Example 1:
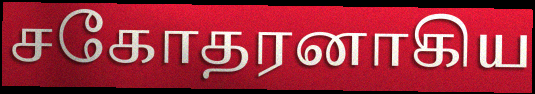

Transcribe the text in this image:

சகோதரனாகிய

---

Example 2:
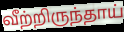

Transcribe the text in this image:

வீற்றிருந்தாய்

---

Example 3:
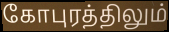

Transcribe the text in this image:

கோபுரத்திலும்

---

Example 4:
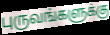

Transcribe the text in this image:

புருவங்களுக்கு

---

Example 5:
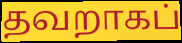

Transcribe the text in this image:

தவறாகப்